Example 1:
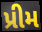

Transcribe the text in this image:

પ્રીમ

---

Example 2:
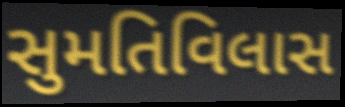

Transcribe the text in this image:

સુમતિવિલાસ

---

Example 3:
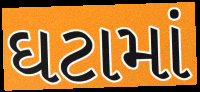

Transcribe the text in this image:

ઘટામાં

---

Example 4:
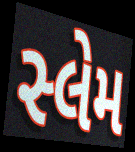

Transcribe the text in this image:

સ્લેમ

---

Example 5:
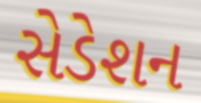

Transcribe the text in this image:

સેડેશન